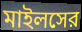
মাইলসের